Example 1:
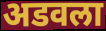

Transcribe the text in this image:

अडवला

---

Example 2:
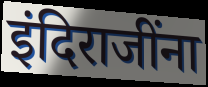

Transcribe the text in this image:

इंदिराजींना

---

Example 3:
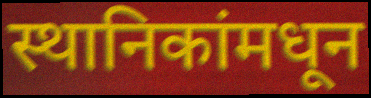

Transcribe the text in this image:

स्थानिकांमधून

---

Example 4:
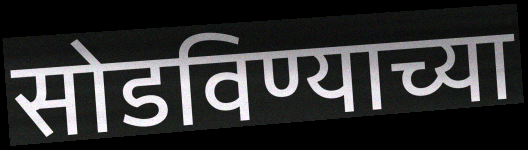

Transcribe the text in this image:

सोडविण्याच्या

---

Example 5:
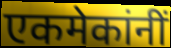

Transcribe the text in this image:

एकमेकांनीं